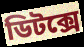
ডিটক্সে